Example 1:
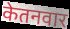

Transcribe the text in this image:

केतनवार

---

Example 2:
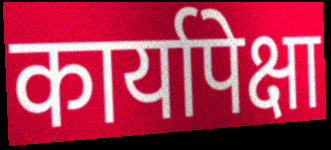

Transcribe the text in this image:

कार्यापेक्षा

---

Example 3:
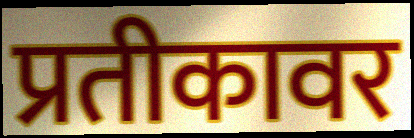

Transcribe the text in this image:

प्रतीकावर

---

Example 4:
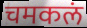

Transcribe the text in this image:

चमकलं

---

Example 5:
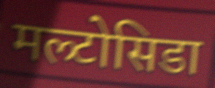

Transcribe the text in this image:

मल्टोसिडा